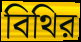
বিথির